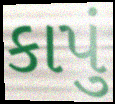
કાપું